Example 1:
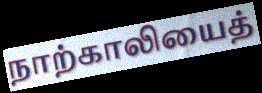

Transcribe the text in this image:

நாற்காலியைத்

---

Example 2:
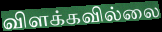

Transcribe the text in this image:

விளக்கவில்லை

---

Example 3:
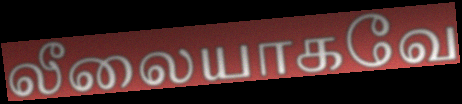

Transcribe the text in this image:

லீலையாகவே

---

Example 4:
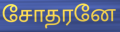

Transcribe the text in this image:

சோதரனே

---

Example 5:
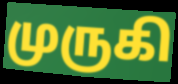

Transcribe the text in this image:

முருகி